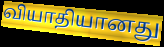
வியாதியானது